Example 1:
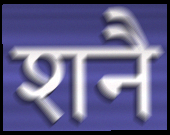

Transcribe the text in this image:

शनै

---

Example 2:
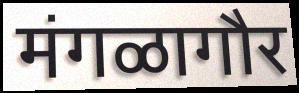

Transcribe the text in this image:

मंगळागौर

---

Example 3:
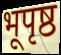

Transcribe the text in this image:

भूपृष्ठ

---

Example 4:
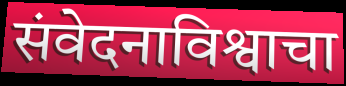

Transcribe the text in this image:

संवेदनाविश्वाचा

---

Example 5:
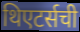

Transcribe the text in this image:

थिएटर्सची